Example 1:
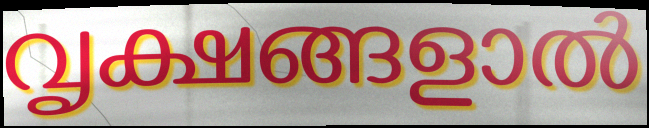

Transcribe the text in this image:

വൃക്ഷങ്ങളാൽ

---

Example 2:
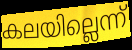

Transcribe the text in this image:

കലയില്ലെന്ന്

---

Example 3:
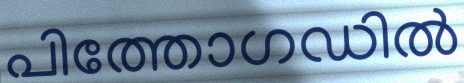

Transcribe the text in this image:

പിത്തോഗഡിൽ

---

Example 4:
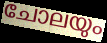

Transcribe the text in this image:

ചോലയും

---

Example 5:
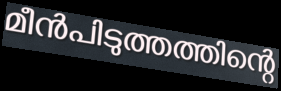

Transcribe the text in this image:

മീൻപിടുത്തത്തിന്റെ